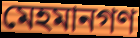
মেহমানগণ